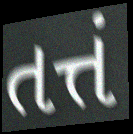
તત્તં